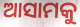
ଆସାମକୁ